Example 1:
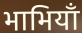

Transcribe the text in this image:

भाभियाँ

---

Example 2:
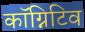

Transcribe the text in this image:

कॉग्निटिव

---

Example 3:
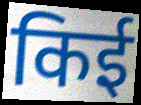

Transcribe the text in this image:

किई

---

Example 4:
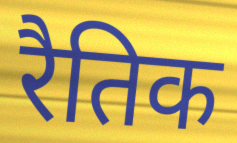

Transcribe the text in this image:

रैतिक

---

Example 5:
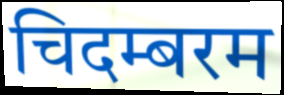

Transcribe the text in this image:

चिदम्बरम